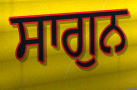
ਸਾਗੁਨ